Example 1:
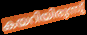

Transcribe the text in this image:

കയറിയിരുന്നു്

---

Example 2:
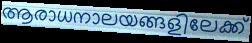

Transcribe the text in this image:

ആരാധനാലയങ്ങളിലേക്ക്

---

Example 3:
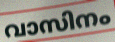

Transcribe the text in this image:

വാസിനം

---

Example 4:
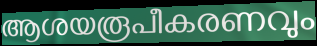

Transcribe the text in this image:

ആശയരൂപീകരണവും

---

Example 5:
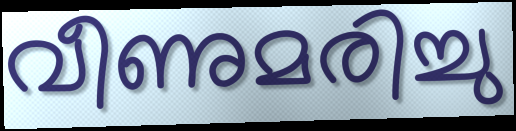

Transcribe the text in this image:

വീണുമരിച്ചു